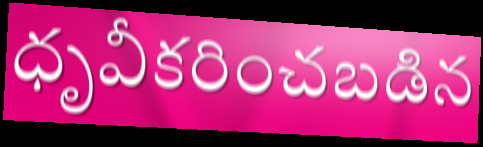
ధృవీకరించబడిన